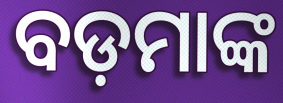
ବଡ଼ମାଙ୍କ